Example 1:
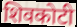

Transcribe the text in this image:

शिवकोटी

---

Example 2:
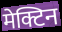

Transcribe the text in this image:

मेक्टिन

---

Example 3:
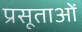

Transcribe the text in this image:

प्रसूताओं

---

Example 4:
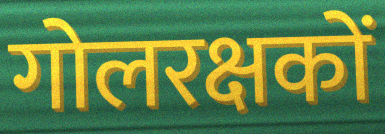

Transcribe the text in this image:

गोलरक्षकों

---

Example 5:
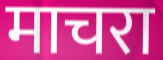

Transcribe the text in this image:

माचरा